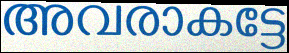
അവരാകട്ടേ